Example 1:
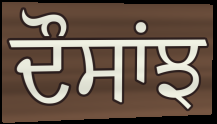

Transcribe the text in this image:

ਦੌਸਾਂਝ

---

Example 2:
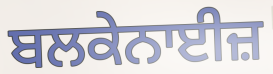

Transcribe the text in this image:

ਬਲਕੇਨਾਈਜ਼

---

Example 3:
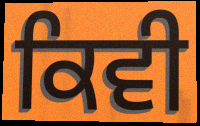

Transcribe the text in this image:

ਕਿਵੀ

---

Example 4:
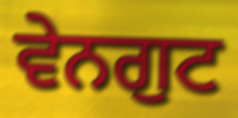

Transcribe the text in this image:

ਵੇਨਗੁਟ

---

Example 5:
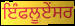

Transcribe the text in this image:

ਇੰਫਲੂਏਂਸਰ